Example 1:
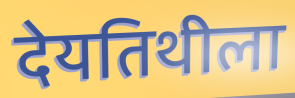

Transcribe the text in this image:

देयतिथीला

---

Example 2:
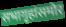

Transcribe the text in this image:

सभागृहांसमोर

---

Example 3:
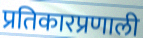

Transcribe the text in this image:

प्रतिकारप्रणाली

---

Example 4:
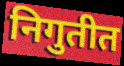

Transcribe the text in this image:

निगुतीत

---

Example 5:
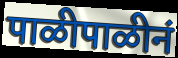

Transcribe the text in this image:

पाळीपाळीनं